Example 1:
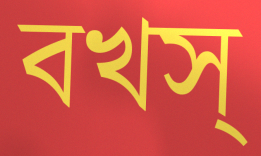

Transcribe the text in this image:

বখস্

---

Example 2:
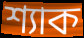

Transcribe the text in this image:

শ্যাক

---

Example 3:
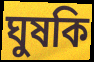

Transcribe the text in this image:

ঘুষকি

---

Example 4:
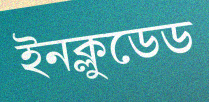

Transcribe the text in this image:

ইনক্লুডেড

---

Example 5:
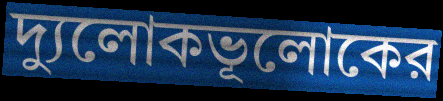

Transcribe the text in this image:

দ্যুলোকভূলোকের